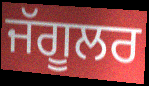
ਜੱਗੂਲਰ